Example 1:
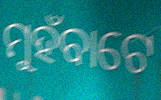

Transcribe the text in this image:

ମୁହଁବାଟେ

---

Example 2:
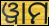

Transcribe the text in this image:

ୱାମ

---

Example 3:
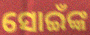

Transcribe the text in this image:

ସୋଇଁଙ୍କ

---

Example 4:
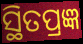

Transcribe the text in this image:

ସ୍ଥିତପ୍ରଜ୍ଞ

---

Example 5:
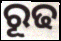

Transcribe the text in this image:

ରୂଢ